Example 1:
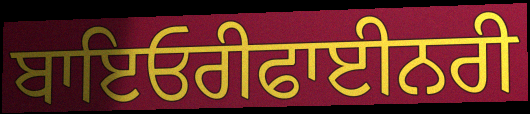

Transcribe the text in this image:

ਬਾਇਓਰੀਫਾਈਨਰੀ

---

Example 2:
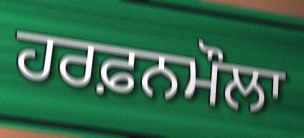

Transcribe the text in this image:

ਹਰਫ਼ਨਮੌਲਾ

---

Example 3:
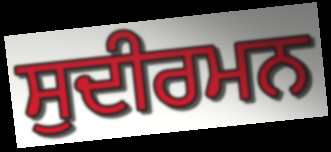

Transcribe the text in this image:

ਸੁਦੀਰਮਨ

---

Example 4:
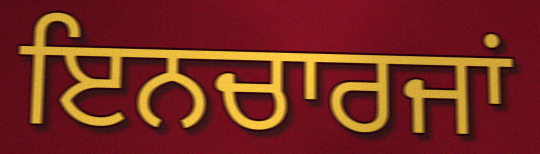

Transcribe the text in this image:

ਇਨਚਾਰਜਾਂ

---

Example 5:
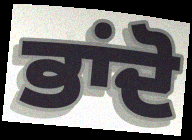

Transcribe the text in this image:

ਭਾਂਦੋ